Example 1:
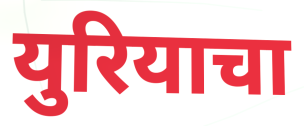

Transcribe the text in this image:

युरियाचा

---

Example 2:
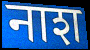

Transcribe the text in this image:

नाश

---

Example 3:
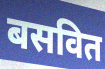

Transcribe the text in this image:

बसवित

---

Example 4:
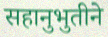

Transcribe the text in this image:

सहानुभुतीने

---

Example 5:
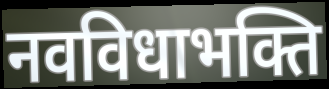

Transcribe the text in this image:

नवविधाभक्ति